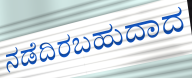
ನಡೆದಿರಬಹುದಾದ